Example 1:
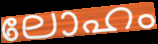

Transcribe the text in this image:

ലോഹം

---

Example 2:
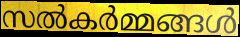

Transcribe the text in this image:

സൽകർമ്മങ്ങൾ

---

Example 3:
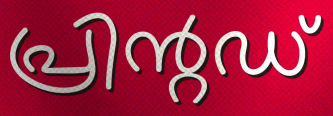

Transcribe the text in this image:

പ്രിന്റഡ്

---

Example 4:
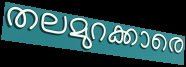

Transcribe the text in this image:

തലമുറക്കാരെ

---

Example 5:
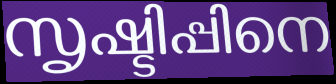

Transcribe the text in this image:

സൃഷ്ടിപ്പിനെ